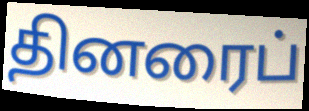
தினரைப்